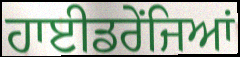
ਹਾਈਡਰੇਂਜਿਆਂ